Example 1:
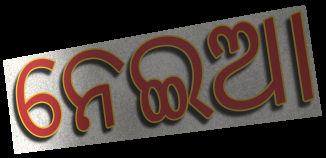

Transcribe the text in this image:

ନେଇଆ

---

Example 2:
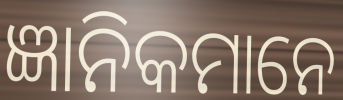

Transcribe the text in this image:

ଜ୍ଞାନିକମାନେ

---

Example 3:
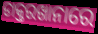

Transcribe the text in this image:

ଡାକ୍ତରଖାନାରେ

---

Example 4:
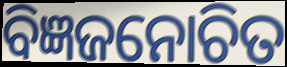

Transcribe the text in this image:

ବିଜ୍ଞଜନୋଚିତ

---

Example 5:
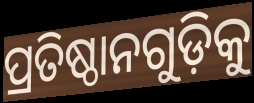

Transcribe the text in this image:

ପ୍ରତିଷ୍ଠାନଗୁଡ଼ିକୁ